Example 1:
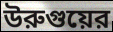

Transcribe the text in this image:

উরুগুয়ের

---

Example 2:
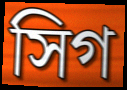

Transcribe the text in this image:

সিগ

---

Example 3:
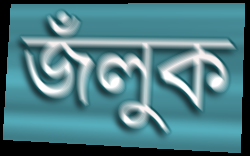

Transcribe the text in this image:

জঁলুক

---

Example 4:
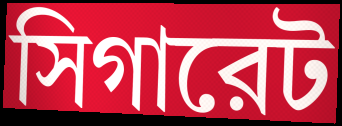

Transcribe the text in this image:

সিগারেট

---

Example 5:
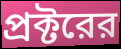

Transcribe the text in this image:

প্রক্টরের